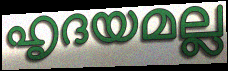
ഹൃദയമല്ല